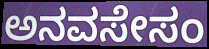
ಅನವಸೇಸಂ